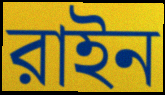
রাইন